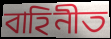
বাহিনীত